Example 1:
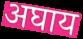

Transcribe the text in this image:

अघाय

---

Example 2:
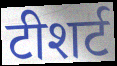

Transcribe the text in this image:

टीशर्ट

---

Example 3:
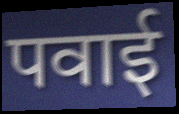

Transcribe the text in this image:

पवाई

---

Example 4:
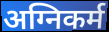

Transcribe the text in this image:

अग्निकर्म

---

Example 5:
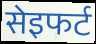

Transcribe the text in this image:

सेइफर्ट